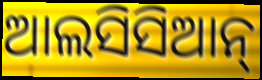
ଆଲସିସିଆନ୍